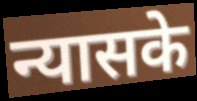
न्यासके